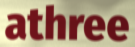
athree